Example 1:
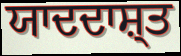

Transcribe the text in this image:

ਯਾਦਦਾਸ਼੍ਤ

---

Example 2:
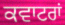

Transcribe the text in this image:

ਕਵਾਟਰਾਂ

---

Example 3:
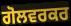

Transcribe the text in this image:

ਗੋਲਵਰਕਰ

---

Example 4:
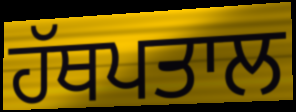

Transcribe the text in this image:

ਹੱਥਪਤਾਲ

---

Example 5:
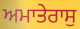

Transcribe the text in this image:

ਅਮਾਤੇਰਾਸੁ